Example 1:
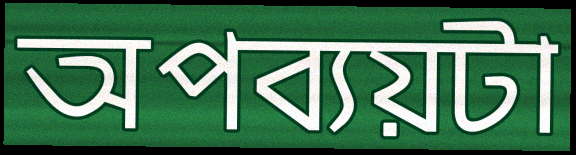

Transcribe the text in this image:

অপব্যয়টা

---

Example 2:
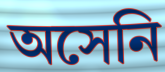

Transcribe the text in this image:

অসেনি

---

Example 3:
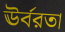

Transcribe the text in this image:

ঊর্বরতা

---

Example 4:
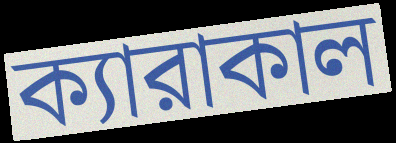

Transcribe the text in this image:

ক্যারাকাল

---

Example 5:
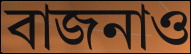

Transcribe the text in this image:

বাজনাও